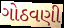
ગોઠવણી